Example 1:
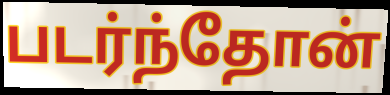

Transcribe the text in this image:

படர்ந்தோன்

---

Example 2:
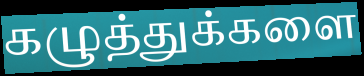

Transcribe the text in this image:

கழுத்துக்களை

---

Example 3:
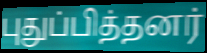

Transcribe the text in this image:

புதுப்பித்தனர்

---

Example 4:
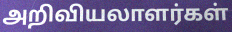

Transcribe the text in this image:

அறிவியலாளர்கள்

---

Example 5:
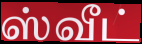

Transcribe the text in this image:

ஸ்வீட்